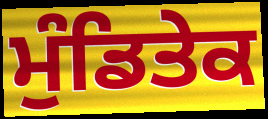
ਮੁੰਡਿਤੇਕ